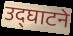
उद्घाटने